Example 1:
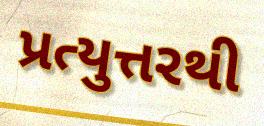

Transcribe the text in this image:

પ્રત્યુત્તરથી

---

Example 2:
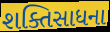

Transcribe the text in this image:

શક્તિસાધના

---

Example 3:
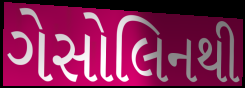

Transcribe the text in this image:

ગેસોલિનથી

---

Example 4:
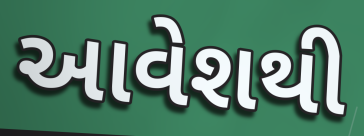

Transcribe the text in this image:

આવેશથી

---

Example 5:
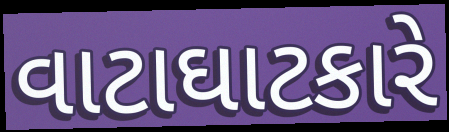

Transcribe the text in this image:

વાટાઘાટકારે